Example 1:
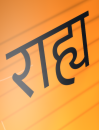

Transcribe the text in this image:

राह्य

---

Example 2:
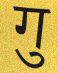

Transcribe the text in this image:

गु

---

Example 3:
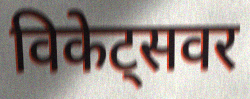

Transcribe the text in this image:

विकेट्सवर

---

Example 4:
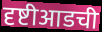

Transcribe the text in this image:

दृष्टीआडची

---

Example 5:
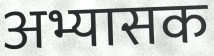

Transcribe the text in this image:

अभ्यासक